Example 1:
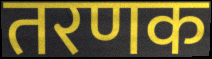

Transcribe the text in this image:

तरणक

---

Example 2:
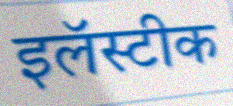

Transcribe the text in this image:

इलॅस्टीक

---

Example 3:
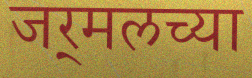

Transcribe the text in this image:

जर्मलच्या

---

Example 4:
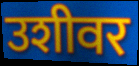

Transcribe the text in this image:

उशीवर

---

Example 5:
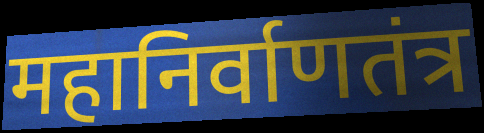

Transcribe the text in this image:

महानिर्वाणतंत्र